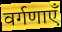
वर्गणाएँ